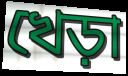
খেড়া